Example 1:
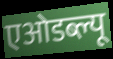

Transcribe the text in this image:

एओडब्ल्यू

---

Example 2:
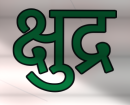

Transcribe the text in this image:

क्षुद्र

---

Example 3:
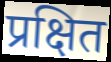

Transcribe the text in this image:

प्रक्षित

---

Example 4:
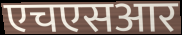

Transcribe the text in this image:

एचएसआर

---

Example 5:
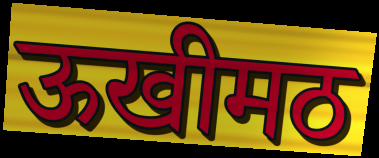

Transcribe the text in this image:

ऊखीमठ